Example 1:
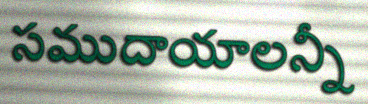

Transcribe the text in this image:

సముదాయాలన్నీ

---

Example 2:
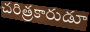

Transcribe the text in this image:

చరిత్రకారుడూ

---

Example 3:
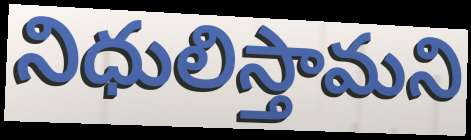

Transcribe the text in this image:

నిధులిస్తామని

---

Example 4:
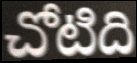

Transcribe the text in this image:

చోటిది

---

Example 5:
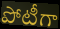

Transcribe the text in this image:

పోటీగా